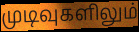
முடிவுகளிலும்